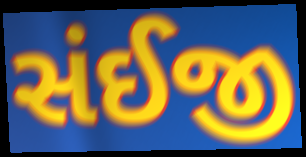
સંઈજી